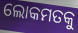
ଲୋକମତକୁ